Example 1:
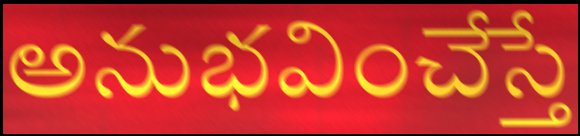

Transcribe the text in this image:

అనుభవించేస్తే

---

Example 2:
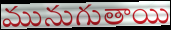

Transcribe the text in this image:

మునుగుతాయి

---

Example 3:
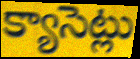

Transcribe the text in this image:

క్యాసెట్లు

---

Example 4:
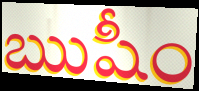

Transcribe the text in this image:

ఋషీం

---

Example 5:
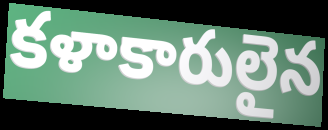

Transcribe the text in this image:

కళాకారులైన